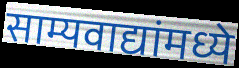
साम्यवाद्यांमध्ये